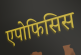
एपोफिसिस